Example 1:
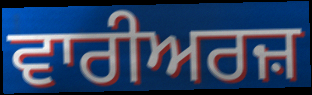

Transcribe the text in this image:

ਵਾਰੀਅਰਜ਼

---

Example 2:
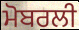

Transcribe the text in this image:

ਮੋਬਰਲੀ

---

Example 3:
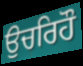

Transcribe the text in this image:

ਉਚਰਿਹੌ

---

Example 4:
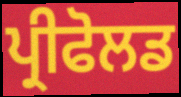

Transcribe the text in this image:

ਪ੍ਰੀਫੋਲਡ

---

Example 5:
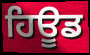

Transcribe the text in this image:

ਹਿਊਡ